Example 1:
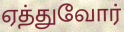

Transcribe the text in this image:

ஏத்துவோர்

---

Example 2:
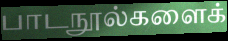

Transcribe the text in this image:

பாடநூல்களைக்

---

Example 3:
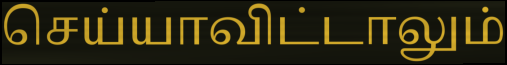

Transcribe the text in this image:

செய்யாவிட்டாலும்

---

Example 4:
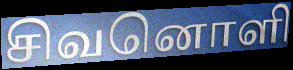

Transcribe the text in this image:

சிவனொளி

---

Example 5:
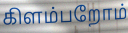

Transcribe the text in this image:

கிளம்பறோம்